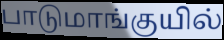
பாடுமாங்குயில்